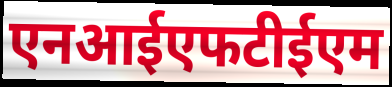
एनआईएफटीईएम